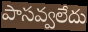
పాసవ్వలేదు